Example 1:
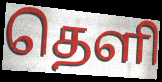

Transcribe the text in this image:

தெளி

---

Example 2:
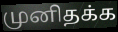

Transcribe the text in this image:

முனிதக்க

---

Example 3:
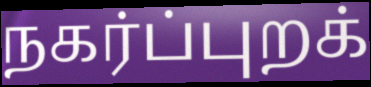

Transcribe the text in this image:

நகர்ப்புறக்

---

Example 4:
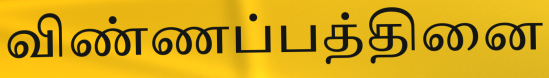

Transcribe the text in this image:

விண்ணப்பத்தினை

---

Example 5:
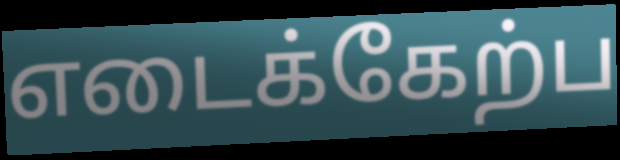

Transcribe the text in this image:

எடைக்கேற்ப